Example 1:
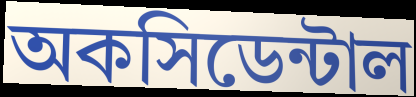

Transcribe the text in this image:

অকসিডেন্টাল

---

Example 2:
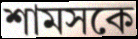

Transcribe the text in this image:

শামসকে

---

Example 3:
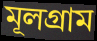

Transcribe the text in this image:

মূলগ্রাম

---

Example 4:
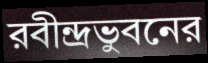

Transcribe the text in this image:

রবীন্দ্রভুবনের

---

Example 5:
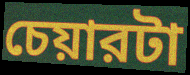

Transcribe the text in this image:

চেয়ারটা